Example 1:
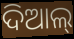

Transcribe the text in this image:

ଦିଆଲ୍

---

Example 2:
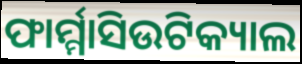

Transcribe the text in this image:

ଫାର୍ମ୍ମାସିଉଟିକ୍ୟାଲ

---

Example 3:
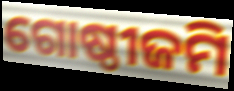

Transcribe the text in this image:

ଗୋଷ୍ଠୀଜମି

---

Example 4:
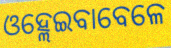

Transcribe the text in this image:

ଓହ୍ଲେଇବାବେଳେ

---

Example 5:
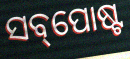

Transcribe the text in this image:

ସବ୍‌ପୋଷ୍ଟ